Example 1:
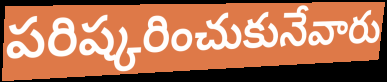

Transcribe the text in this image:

పరిష్కరించుకునేవారు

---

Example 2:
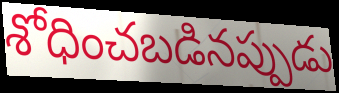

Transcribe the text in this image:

శోధించబడినప్పుడు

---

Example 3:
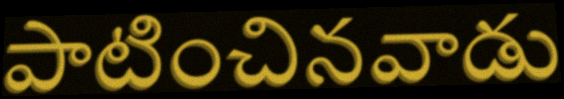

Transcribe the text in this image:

పాటించినవాడు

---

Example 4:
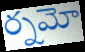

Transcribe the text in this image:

ర్నమో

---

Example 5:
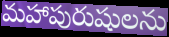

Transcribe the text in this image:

మహాపురుషులను